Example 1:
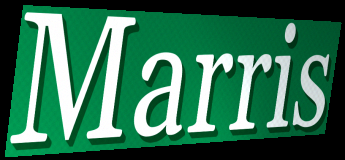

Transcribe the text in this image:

Marris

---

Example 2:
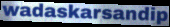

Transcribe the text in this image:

wadaskarsandip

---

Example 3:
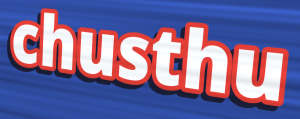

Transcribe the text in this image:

chusthu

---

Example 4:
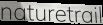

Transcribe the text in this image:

naturetrail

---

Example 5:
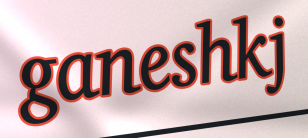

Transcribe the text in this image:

ganeshkj